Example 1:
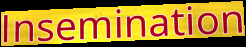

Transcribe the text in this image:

Insemination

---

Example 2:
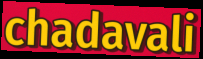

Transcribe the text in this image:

chadavali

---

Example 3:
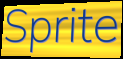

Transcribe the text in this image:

Sprite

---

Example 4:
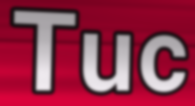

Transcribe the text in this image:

Tuc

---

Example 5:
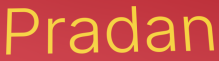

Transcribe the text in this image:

Pradan